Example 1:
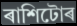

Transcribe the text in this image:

ৰাশিটোৰ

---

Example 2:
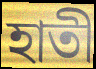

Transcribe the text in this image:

হাতী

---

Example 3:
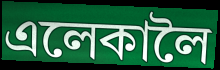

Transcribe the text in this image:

এলেকালৈ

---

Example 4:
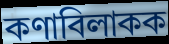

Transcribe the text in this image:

কণাবিলাকক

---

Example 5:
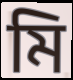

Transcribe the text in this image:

মি